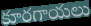
కూరగాయలు